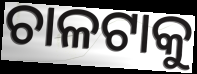
ଚାଳଟାକୁ